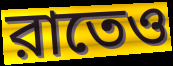
রাতেও